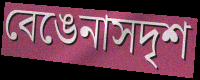
বেঙেনাসদৃশ